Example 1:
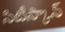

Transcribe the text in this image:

సిటీస్కాన్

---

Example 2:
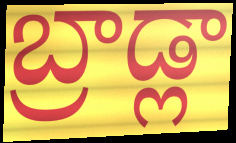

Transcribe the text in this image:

బ్రాడ్లా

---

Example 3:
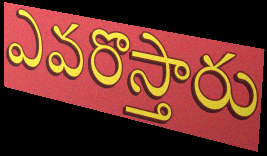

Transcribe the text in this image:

ఎవరొస్తారు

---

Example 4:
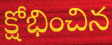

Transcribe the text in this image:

క్షోభించిన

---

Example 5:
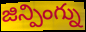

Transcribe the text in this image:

జిన్పింగ్ను